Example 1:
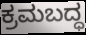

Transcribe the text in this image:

ಕ್ರಮಬದ್ಧ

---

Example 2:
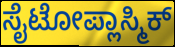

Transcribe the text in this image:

ಸೈಟೋಪ್ಲಾಸ್ಮಿಕ್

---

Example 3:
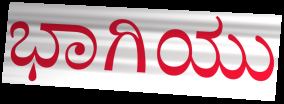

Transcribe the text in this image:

ಭಾಗಿಯು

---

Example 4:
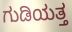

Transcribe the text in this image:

ಗುಡಿಯತ್ತ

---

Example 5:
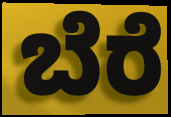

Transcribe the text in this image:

ಬೆರೆ